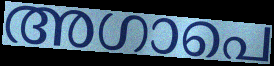
അഗാപെ